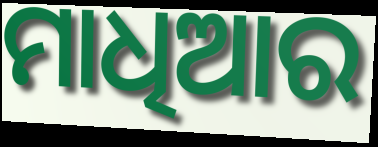
ମାଧିଆର